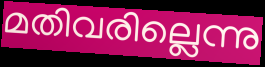
മതിവരില്ലെന്നു